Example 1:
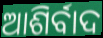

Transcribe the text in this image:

ଆଶିର୍ବାଦ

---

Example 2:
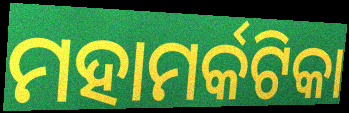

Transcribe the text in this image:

ମହାମର୍କଟିକା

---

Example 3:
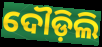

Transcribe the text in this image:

ଦୌଡ଼ିଲି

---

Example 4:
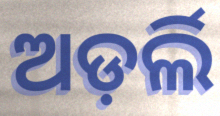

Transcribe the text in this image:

ଅଡ଼ର୍ଲି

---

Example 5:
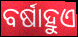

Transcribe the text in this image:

ବର୍ଷାହୁଏ